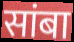
सांबा